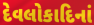
દેવલોકાદિનાં